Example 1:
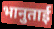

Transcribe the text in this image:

भानुताई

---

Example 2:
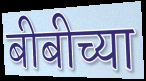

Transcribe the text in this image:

बीबीच्या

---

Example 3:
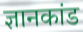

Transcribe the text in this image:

ज्ञानकांड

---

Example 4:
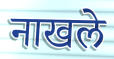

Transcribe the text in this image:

नाखले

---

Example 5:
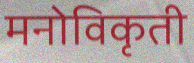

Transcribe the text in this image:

मनोविकृती